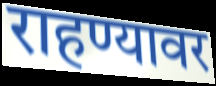
राहण्यावर